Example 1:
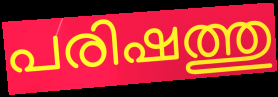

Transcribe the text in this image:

പരിഷത്തു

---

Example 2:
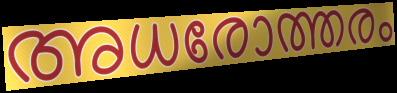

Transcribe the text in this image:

അധരോത്തരം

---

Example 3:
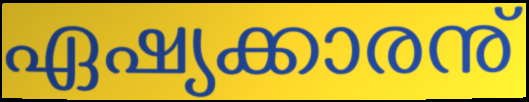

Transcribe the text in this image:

ഏഷ്യക്കാരനു്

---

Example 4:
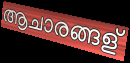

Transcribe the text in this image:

ആചാരങ്ങള്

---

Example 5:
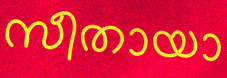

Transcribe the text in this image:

സീതായാ